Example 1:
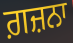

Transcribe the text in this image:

ਗ਼ਜ਼ਨਾ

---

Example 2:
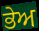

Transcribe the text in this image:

ਭੇਅ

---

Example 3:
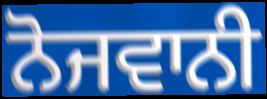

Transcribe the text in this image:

ਨੋਜਵਾਨੀ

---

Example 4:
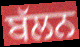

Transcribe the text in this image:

ਬੱਲਨ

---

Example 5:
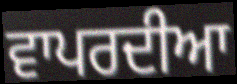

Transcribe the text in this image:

ਵਾਪਰਦੀਆ